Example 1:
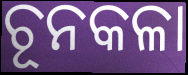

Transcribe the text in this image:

ଚୂନକଳା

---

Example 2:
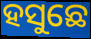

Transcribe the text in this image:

ହସୁଛେ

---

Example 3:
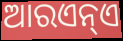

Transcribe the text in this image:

ଆରଏନ୍ଏ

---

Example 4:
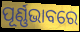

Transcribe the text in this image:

ପୂର୍ଣ୍ଣଭାବରେ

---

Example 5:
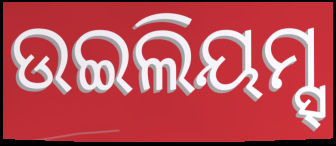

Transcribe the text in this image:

ଉଇଲିୟମ୍ସ୍